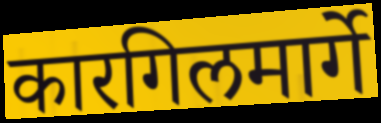
कारगिलमार्गे